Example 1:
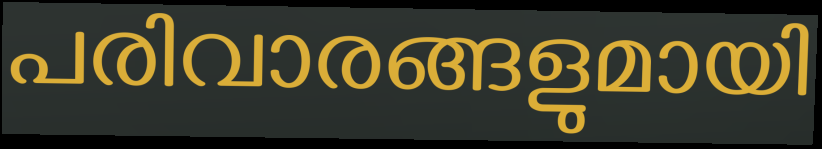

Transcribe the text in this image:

പരിവാരങ്ങളുമായി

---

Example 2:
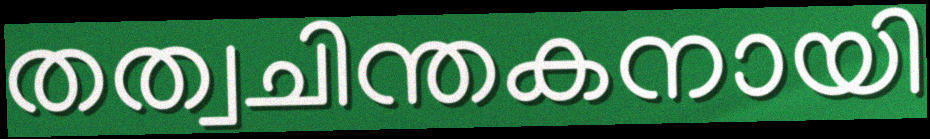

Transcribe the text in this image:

തത്വചിന്തകനായി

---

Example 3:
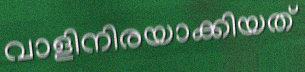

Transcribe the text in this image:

വാളിനിരയാക്കിയത്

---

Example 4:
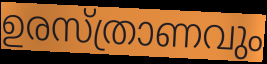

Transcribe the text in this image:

ഉരസ്ത്രാണവും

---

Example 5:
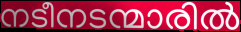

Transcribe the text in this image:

നടീനടന്മാരിൽ